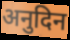
अनुदिन